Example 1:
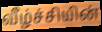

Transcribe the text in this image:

வீழ்ச்சியின்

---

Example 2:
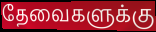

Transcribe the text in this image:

தேவைகளுக்கு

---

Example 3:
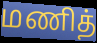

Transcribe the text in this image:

மணித்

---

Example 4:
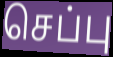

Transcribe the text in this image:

செப்பு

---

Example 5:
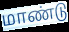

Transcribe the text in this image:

மாண்டு